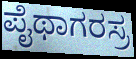
ಪೈಥಾಗರಸ್ರ